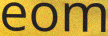
eom